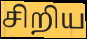
சிறிய